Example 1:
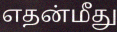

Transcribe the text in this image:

எதன்மீது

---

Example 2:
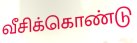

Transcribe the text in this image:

வீசிக்கொண்டு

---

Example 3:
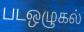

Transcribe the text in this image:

படஒழுகல்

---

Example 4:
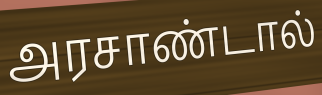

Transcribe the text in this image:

அரசாண்டால்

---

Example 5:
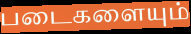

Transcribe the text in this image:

படைகளையும்